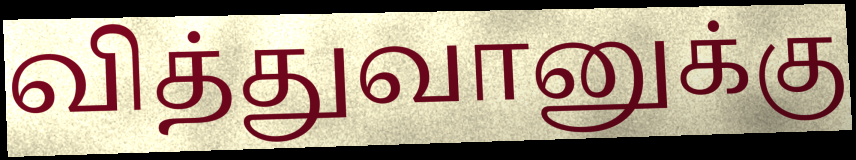
வித்துவானுக்கு